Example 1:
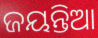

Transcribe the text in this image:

ଜୟନ୍ତିଆ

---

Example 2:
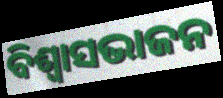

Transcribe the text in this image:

ବିଶ୍ୱାସଭାଜନ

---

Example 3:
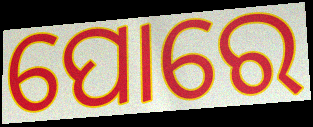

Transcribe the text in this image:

ପୋରେ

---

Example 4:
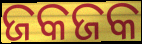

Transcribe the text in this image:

ଜକଜକ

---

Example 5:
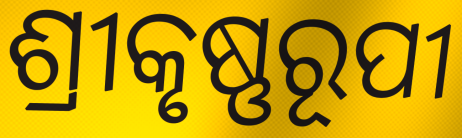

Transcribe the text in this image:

ଶ୍ରୀକୃଷ୍ଣରୂପୀ